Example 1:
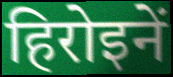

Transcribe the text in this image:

हिरोइनें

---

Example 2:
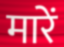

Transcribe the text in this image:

मारें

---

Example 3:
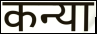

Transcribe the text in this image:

कन्या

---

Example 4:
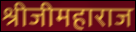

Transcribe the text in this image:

श्रीजीमहाराज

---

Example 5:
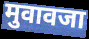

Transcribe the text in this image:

मुवावजा